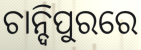
ଚାନ୍ଦିପୁରରେ